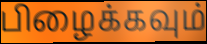
பிழைக்கவும்